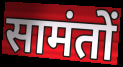
सामंतों